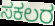
ಸಕಲರ